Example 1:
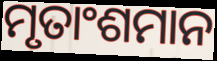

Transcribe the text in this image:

ମୃତାଂଶମାନ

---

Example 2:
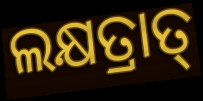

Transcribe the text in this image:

ଲକ୍ଷତ୍ରାତ୍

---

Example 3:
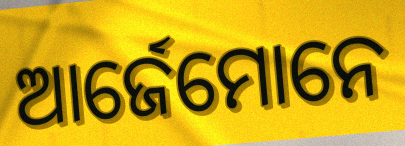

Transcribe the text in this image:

ଆର୍ଜେମୋନେ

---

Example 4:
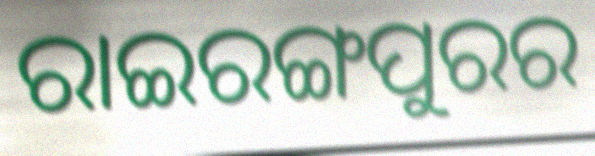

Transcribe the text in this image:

ରାଇରଙ୍ଗପୁରର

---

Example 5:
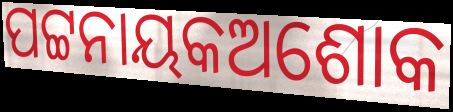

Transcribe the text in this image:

ପଟ୍ଟନାୟକଅଶୋକ